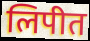
लिपीत